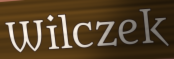
Wilczek